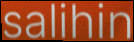
salihin